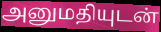
அனுமதியுடன்